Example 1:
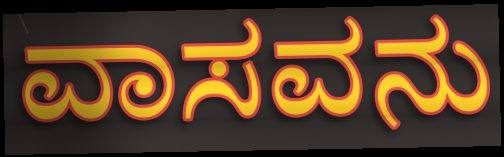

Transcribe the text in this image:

ವಾಸವನು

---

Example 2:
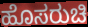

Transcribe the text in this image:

ಹೊಸರುಚಿ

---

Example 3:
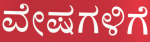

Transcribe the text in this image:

ವೇಷಗಳಿಗೆ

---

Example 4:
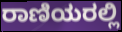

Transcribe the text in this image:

ರಾಣಿಯರಲ್ಲಿ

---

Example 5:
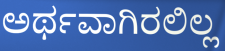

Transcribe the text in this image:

ಅರ್ಥವಾಗಿರಲಿಲ್ಲ